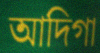
আদিগা